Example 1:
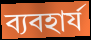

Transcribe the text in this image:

ব্যবহার্য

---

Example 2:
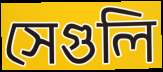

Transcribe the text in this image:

সেগুলি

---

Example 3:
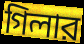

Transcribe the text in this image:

গিলার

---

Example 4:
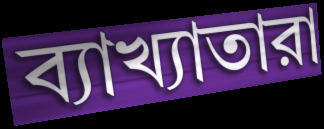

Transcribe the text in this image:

ব্যাখ্যাতারা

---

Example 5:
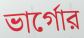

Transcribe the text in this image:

ভার্গোর